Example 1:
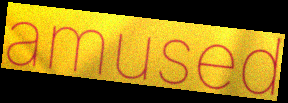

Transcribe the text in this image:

amused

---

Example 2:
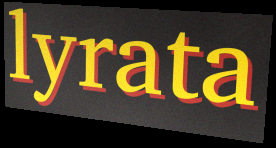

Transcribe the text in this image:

lyrata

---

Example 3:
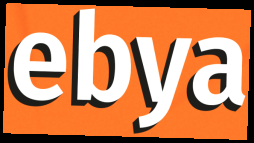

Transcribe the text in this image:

ebya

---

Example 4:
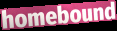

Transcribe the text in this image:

homebound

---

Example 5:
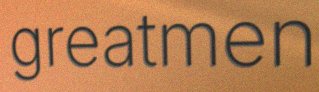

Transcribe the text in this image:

greatmen